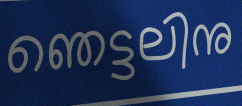
ഞെട്ടലിനു